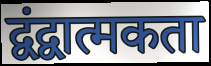
द्वंद्वात्मकता